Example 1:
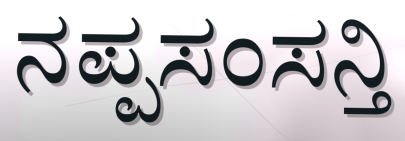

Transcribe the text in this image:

ನಪ್ಪಸಂಸನ್ತಿ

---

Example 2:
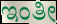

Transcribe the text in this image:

ಇಂತೀ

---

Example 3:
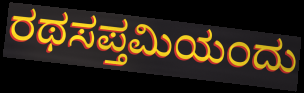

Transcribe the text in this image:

ರಥಸಪ್ತಮಿಯಂದು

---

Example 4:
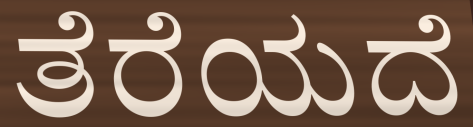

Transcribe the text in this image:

ತೆರೆಯದೆ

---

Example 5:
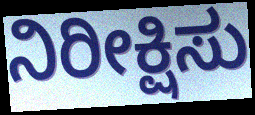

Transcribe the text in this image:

ನಿರೀಕ್ಷಿಸು